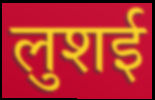
लुशई